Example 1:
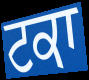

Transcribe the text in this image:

ਟਕਾ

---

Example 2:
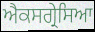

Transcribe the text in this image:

ਐਕਸਗ੍ਰੇਸਿਆ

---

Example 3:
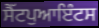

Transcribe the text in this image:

ਸੈੱਟਪੁਆਇੰਟਸ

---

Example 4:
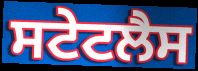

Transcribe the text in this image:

ਸਟੇਟਲੈਸ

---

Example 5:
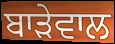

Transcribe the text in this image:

ਬਾੜੇਵਾਲ